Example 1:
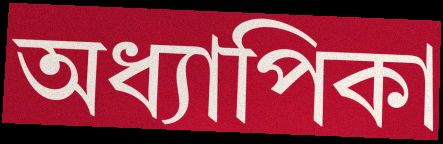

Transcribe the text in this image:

অধ্যাপিকা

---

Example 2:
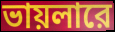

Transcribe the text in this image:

ভায়লারে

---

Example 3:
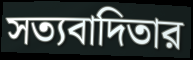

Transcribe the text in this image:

সত্যবাদিতার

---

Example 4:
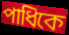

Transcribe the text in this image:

পাধিকে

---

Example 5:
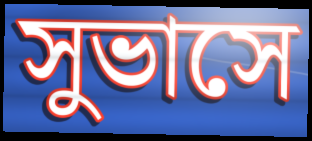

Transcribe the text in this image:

সুভাসে